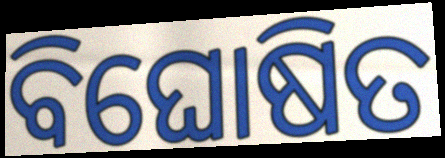
ବିଘୋଷିତ